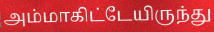
அம்மாகிட்டேயிருந்து